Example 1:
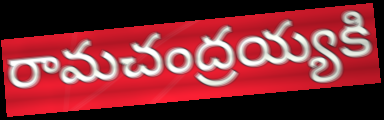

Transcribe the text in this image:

రామచంద్రయ్యకి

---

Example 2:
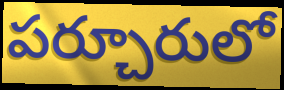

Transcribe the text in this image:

పర్చూరులో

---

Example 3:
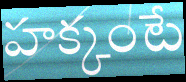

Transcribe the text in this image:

హక్కంటే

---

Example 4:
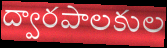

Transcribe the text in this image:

ద్వారపాలకుల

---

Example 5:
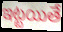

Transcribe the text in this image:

ఇట్టయితే